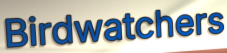
Birdwatchers